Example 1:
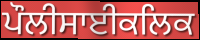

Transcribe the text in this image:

ਪੌਲੀਸਾਈਕਲਿਕ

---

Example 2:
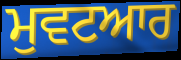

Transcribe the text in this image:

ਮੁਵਟਆਰ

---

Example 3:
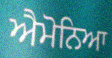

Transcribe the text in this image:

ਐਮੋਨਿਆ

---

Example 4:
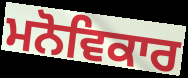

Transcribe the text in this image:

ਮਨੋਵਿਕਾਰ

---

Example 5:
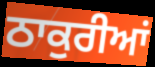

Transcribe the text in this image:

ਠਾਕੁਰੀਆਂ